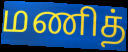
மணித்